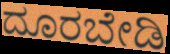
ದೂರಬೇಡಿ